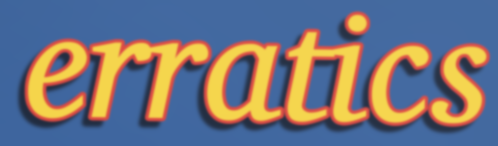
erratics